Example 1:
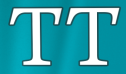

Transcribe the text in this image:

TT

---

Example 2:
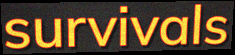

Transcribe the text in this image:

survivals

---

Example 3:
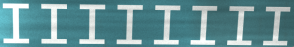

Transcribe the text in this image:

IIIIIIII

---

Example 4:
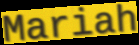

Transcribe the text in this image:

Mariah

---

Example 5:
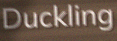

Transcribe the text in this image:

Duckling